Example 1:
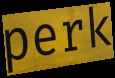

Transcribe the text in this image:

perk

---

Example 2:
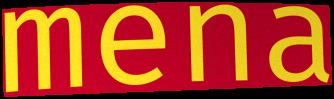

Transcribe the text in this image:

mena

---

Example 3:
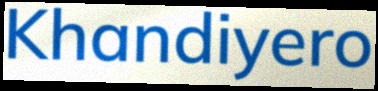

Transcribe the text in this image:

Khandiyero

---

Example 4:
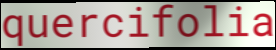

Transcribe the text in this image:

quercifolia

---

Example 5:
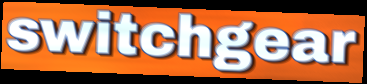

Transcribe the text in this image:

switchgear